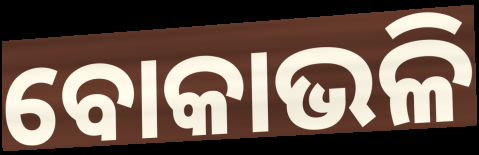
ବୋକାଭଳି